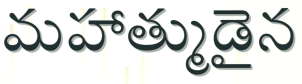
మహాత్ముడైన